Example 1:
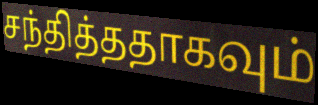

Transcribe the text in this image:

சந்தித்ததாகவும்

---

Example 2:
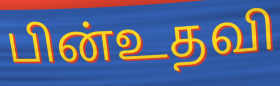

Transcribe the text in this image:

பின்உதவி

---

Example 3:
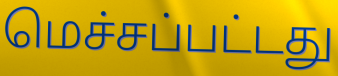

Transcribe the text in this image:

மெச்சப்பட்டது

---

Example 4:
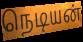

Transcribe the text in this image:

நெடியன்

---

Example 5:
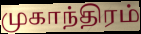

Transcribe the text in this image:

முகாந்திரம்